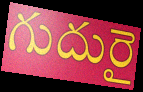
గుదురై